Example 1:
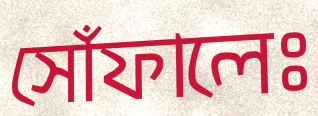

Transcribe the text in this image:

সোঁফালেঃ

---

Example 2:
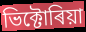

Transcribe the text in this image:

ভিক্টোৰিয়া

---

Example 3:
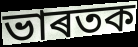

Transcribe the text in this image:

ভাৰতক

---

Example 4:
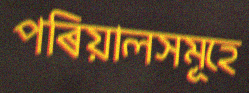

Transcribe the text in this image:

পৰিয়ালসমূহে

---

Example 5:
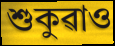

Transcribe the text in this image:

শুকুৱাও